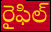
రైఫిల్